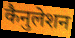
कैनुलेशन